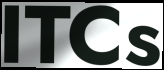
ITCs